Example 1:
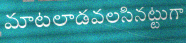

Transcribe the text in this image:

మాటలాడవలసినట్టుగా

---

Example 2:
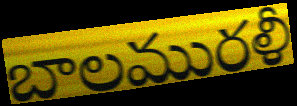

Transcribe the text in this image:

బాలమురళీ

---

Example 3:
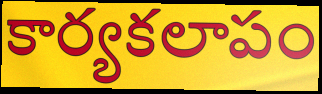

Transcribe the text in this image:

కార్యకలాపం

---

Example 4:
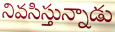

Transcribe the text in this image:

నివసిస్తున్నాడు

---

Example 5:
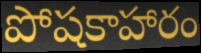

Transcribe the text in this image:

పోషకాహారం